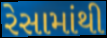
રેસામાંથી